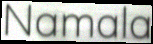
Namala